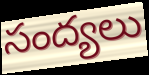
సంద్యలు